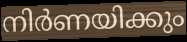
നിർണയിക്കും